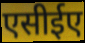
एसीईए